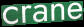
crane